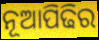
ନୂଆପିଢିର